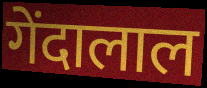
गेंदालाल